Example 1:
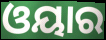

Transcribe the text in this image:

ଓୟାର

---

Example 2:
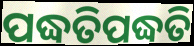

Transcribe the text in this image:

ପଦ୍ଧତିପଦ୍ଧତି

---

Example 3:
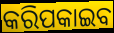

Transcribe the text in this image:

କରିପକାଇବ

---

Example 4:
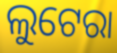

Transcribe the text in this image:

ଲୁଟେରା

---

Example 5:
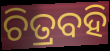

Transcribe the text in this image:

ଚିତ୍ରବହି